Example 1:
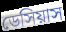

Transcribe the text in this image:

ডেসিয়াস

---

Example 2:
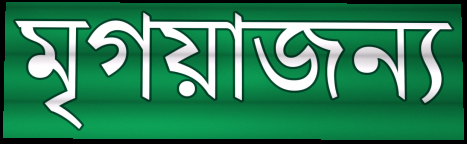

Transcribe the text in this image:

মৃগয়াজন্য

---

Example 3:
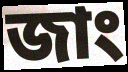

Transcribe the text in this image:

জাং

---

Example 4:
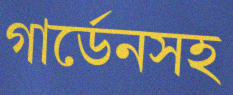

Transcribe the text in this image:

গার্ডেনসহ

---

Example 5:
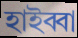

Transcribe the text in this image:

হাইব্বা